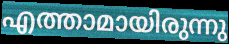
എത്താമായിരുന്നു